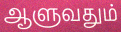
ஆளுவதும்